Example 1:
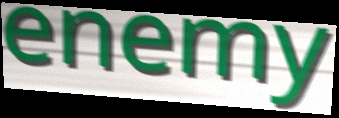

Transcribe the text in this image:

enemy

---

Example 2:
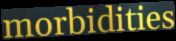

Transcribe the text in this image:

morbidities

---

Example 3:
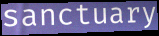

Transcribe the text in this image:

sanctuary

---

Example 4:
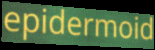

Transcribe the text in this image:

epidermoid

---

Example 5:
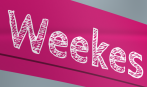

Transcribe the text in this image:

Weekes